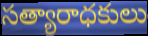
సత్యారాధకులు